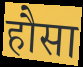
हौसा